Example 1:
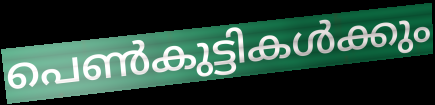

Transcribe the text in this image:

പെൺകുട്ടികൾക്കും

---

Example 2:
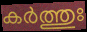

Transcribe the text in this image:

കർത്തുഃ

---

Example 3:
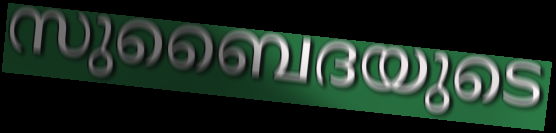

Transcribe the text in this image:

സുബൈദയുടെ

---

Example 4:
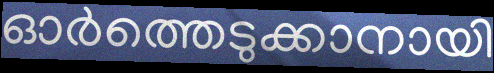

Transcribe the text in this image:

ഓർത്തെടുക്കാനായി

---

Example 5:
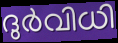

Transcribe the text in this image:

ദുർവിധി